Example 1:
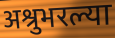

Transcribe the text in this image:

अश्रुभरल्या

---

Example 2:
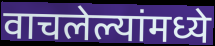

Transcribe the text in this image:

वाचलेल्यांमध्ये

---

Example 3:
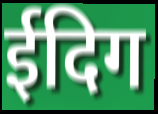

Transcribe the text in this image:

ईदिग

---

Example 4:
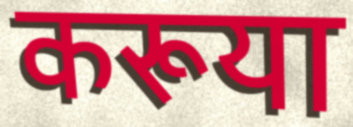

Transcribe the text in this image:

करूया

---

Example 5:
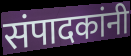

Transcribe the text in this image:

संपादकांनी